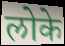
लोके